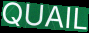
QUAIL